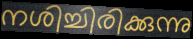
നശിച്ചിരിക്കുന്നു